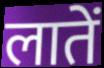
लातें